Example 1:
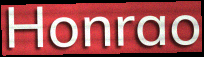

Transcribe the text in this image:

Honrao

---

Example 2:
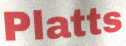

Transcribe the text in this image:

Platts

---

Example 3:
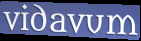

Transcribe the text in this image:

vidavum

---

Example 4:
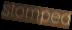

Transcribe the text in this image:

stomped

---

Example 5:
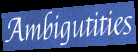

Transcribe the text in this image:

Ambigutities